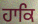
ਹਾਕਿ